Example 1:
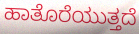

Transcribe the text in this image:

ಹಾತೊರೆಯುತ್ತದೆ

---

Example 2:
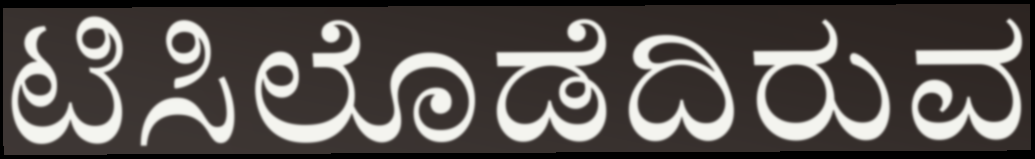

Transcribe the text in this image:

ಟಿಸಿಲೊಡೆದಿರುವ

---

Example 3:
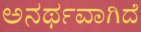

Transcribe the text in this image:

ಅನರ್ಥವಾಗಿದೆ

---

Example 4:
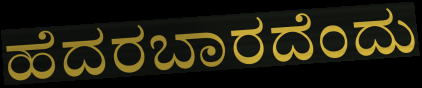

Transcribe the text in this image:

ಹೆದರಬಾರದೆಂದು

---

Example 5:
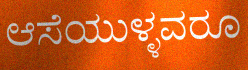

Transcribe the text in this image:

ಆಸೆಯುಳ್ಳವರೂ